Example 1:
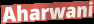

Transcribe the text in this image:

Aharwani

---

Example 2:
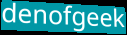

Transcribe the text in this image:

denofgeek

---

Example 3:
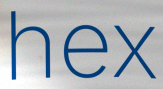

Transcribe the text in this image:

hex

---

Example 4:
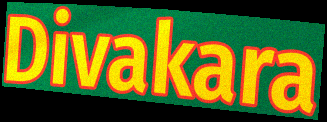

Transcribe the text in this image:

Divakara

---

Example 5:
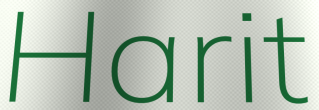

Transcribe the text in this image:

Harit